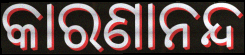
କାରଣାନନ୍ଦ